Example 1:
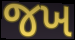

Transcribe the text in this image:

જખ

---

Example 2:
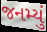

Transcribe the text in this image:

જનમ્યું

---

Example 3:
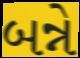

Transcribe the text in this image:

બન્ને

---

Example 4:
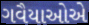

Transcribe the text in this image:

ગવૈયાઓએ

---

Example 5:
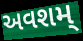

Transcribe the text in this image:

અવશમ્